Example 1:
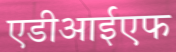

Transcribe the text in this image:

एडीआईएफ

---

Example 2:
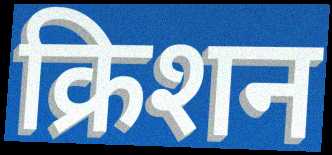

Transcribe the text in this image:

क्रिशन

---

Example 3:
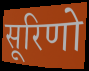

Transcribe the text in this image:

सूरिणो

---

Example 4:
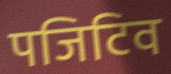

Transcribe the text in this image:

पजिटिव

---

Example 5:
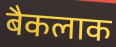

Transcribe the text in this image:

बैकलाक